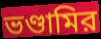
ভণ্ডামির